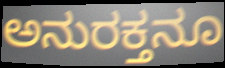
ಅನುರಕ್ತನೂ